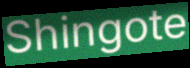
Shingote